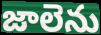
జాలెను